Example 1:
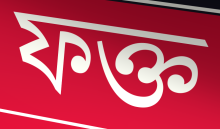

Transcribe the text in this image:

ফক্ত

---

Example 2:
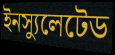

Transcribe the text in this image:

ইনস্যুলেটেড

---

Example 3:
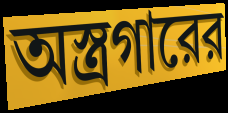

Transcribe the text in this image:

অস্ত্রগারের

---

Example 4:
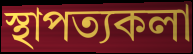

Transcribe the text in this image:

স্থাপত্যকলা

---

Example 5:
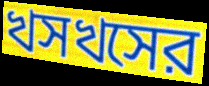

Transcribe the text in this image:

খসখসের